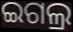
ଇଗଲ୍ର